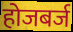
होजबर्ज